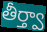
తీర్త్వా